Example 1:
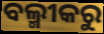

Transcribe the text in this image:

ବଲ୍ମୀକରୁ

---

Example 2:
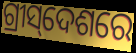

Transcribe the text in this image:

ଗ୍ରୀସ୍‌ଦେଶରେ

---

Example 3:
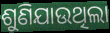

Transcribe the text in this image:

ଶୁଣିଯାଉଥିଲା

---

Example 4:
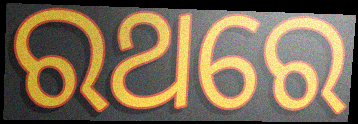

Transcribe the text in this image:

ରଥରେ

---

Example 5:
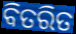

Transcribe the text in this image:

ବିତରିତ